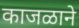
काजळाने